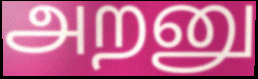
அறனு